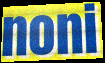
noni